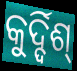
କୁର୍ଦ୍ଦିଶ୍